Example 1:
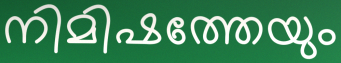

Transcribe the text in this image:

നിമിഷത്തേയും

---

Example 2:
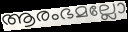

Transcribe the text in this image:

ആരംഭമല്ലോ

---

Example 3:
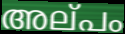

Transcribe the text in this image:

അല്‌പം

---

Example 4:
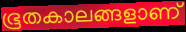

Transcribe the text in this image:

ഭൂതകാലങ്ങളാണ്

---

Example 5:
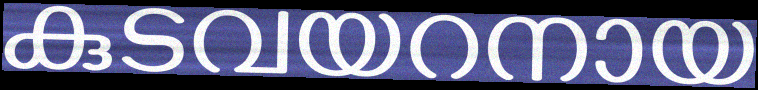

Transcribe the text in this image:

കുടവയറനായ